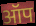
ऑप